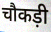
चौकड़ी